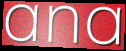
ana